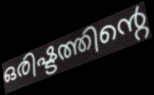
ഒരിഷ്ടത്തിന്റെ